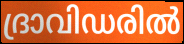
ദ്രാവിഡരിൽ